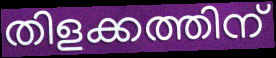
തിളക്കത്തിന്